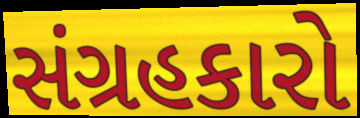
સંગ્રહકારો